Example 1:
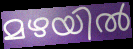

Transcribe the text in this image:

മഴയിൽ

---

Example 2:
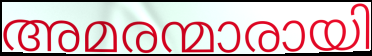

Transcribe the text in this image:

അമരന്മാരായി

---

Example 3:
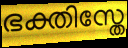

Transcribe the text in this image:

ഭക്തിസ്തേ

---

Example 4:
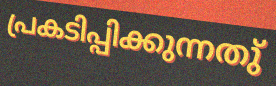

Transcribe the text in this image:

പ്രകടിപ്പിക്കുന്നതു്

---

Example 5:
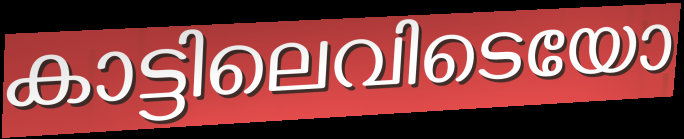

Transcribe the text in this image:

കാട്ടിലെവിടെയോ